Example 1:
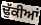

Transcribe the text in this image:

ਢੁੱਕੀਆਂ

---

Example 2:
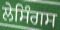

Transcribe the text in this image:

ਲੇਸਿੰਗਸ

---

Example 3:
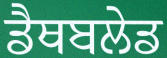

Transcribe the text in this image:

ਡੈਥਬਲੇਡ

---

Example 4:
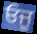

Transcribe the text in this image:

ਓਜੂ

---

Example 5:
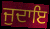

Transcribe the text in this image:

ਜੁਦਾਇ